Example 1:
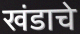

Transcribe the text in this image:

खंडाचे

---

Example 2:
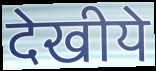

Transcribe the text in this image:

देखीये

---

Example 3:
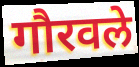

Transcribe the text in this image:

गौरवले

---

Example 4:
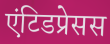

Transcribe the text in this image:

एंटिडप्रेसस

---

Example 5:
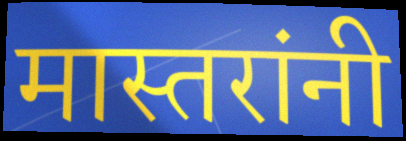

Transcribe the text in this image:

मास्तरांनी